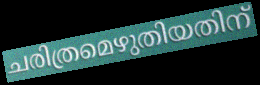
ചരിത്രമെഴുതിയതിന്